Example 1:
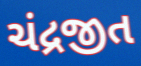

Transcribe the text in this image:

ચંદ્રજીત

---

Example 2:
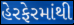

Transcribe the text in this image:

હેરફેરમાંથી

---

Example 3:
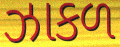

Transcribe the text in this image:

ઝાકળ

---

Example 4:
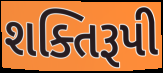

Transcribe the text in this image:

શક્તિરૂપી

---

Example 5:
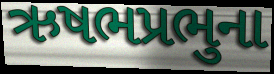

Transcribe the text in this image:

ઋષભપ્રભુના